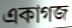
একাগজ